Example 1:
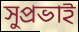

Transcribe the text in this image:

সুপ্রভাই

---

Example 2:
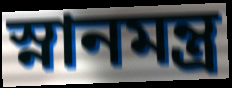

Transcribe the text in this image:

স্নানমন্ত্র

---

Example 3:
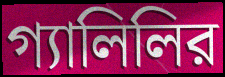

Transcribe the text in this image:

গ্যালিলির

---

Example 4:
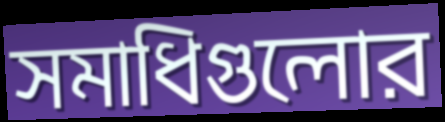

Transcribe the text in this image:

সমাধিগুলোর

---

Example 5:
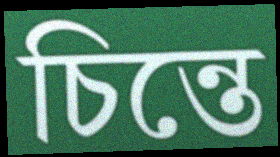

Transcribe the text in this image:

চিন্তে